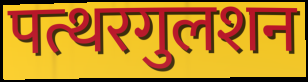
पत्थरगुलशन